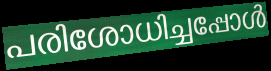
പരിശോധിച്ചപ്പോൾ